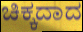
ಚಿಕ್ಕದಾದ